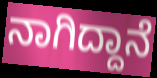
ನಾಗಿದ್ದಾನೆ